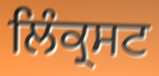
ਲਿੰਕ੍ਰਸਟ